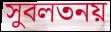
সুবলতনয়